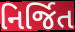
નિર્જિત